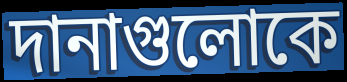
দানাগুলোকে